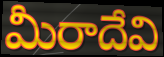
మీరాదేవి